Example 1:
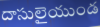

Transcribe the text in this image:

దాసులైయుండ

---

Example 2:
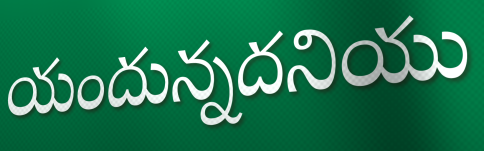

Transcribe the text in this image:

యందున్నదనియు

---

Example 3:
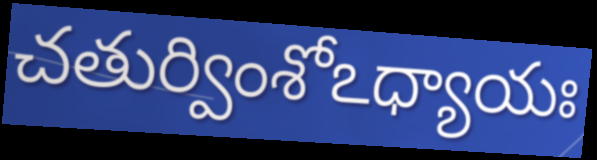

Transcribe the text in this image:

చతుర్వింశోఽధ్యాయః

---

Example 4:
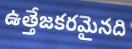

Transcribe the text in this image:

ఉత్తేజకరమైనది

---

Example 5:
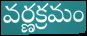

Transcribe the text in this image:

వర్ణక్రమం